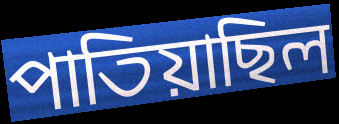
পাতিয়াছিল